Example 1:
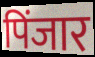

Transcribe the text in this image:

पिंजार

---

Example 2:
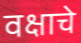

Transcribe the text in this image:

वक्षाचे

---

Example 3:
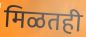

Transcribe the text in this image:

मिळतही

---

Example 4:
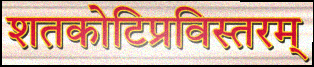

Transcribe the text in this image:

शतकोटिप्रविस्तरम्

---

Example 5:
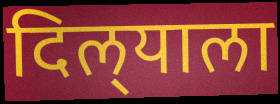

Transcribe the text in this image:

दिल्याला